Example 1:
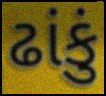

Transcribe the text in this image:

ઢાંકું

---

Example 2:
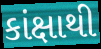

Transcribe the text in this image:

કાંક્ષાથી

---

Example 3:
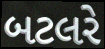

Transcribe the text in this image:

બટલરે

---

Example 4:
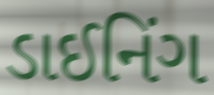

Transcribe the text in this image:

ડાઈનિંગ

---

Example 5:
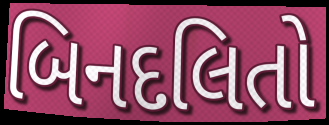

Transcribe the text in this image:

બિનદલિતો